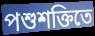
পশুশক্তিতে